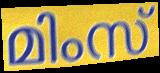
മിംസ്